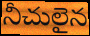
నీచులైన